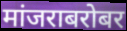
मांजराबरोबर